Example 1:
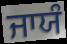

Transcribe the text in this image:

ਜਾਯੰ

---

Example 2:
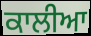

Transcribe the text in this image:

ਕਾਲੀਆ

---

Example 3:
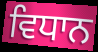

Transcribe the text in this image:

ਵਿਧਾਨ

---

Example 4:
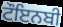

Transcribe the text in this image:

ਟੌਇਨਬੀ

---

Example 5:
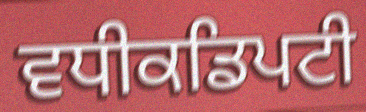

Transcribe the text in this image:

ਵਧੀਕਡਿਪਟੀ